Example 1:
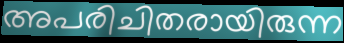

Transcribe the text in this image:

അപരിചിതരായിരുന്ന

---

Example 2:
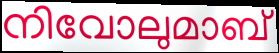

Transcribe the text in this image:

നിവോലുമാബ്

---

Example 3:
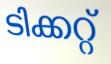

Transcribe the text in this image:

ടിക്കറ്റ്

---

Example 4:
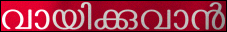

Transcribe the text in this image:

വായിക്കുവാൻ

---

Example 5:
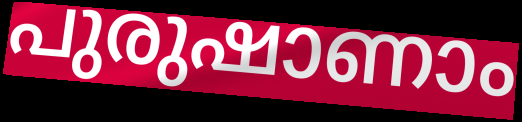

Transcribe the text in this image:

പുരുഷാണാം